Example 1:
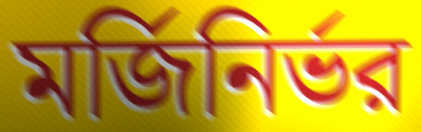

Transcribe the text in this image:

মর্জিনির্ভর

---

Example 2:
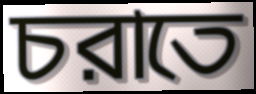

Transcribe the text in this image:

চরাতে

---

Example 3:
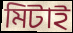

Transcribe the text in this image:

মিটাই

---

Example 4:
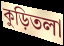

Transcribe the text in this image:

কুড়িতলা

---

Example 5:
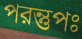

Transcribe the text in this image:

পরন্তুপঃ